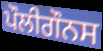
ਪੌਲੀਗੌਨਸ